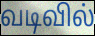
வடிவில்